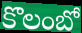
కొలంబో